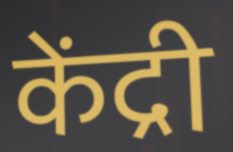
केंद्री